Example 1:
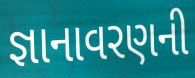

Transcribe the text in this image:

જ્ઞાનાવરણની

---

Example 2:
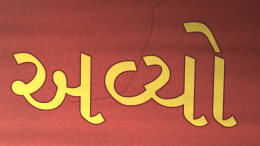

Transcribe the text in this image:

અવ્યો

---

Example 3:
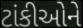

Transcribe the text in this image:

ટાંકીઓને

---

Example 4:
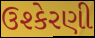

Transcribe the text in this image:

ઉશ્કેરણી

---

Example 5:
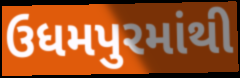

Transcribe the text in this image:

ઉધમપુરમાંથી